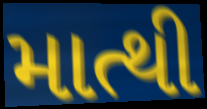
માત્થી